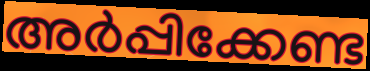
അർപ്പിക്കേണ്ട